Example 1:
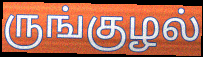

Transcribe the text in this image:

ருங்குழல்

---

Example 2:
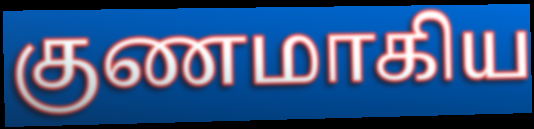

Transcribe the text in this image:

குணமாகிய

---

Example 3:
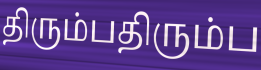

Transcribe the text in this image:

திரும்பதிரும்ப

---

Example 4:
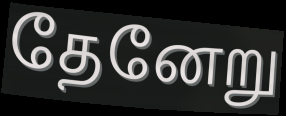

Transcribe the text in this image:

தேனேறு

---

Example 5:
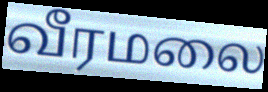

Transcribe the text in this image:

வீரமலை